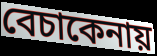
বেচাকেনায়